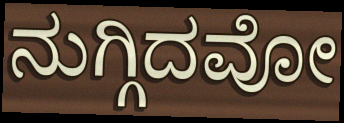
ನುಗ್ಗಿದವೋ